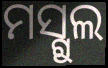
ମସ୍ଗୁଲ